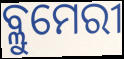
ବ୍ଲୁମେରୀ